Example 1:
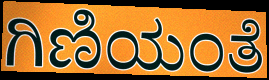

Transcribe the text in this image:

ಗಿಣಿಯಂತೆ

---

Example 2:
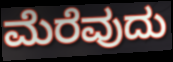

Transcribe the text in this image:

ಮೆರೆವುದು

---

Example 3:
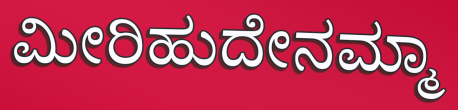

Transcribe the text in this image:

ಮೀರಿಹುದೇನಮ್ಮಾ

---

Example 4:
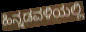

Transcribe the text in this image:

ಹಿನ್ನಡವಳಿಯಲ್ಲಿ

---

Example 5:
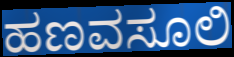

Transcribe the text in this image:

ಹಣವಸೂಲಿ